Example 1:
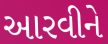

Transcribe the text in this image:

આરવીને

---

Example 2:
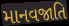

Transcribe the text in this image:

માનવજાતિ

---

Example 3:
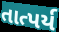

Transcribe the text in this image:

તાત્પર્ય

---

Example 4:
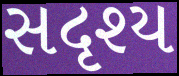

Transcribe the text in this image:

સદૃશ્ય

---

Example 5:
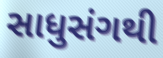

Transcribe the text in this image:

સાધુસંગથી